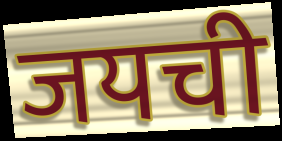
जयची